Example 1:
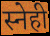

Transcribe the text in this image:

स्नेही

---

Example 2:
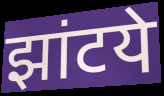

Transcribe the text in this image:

झांटये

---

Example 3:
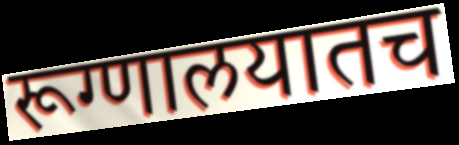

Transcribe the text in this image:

रूग्णालयातच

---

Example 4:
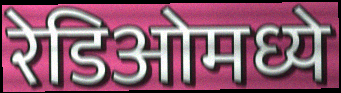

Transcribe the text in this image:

रेडिओमध्ये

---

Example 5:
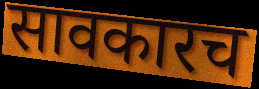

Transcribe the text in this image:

सावकारच